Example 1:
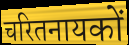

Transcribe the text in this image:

चरितनायकों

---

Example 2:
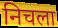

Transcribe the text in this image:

निचला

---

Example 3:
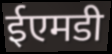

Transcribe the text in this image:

ईएमडी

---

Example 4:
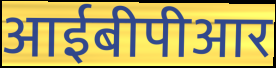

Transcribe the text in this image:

आईबीपीआर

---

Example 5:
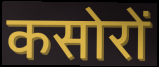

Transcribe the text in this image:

कसोरों